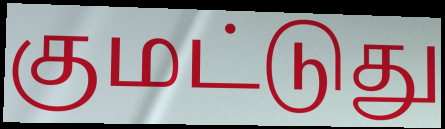
குமட்டுது